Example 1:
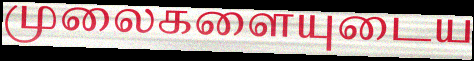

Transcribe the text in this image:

முலைகளையுடைய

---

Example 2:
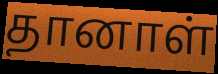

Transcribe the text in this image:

தானாள்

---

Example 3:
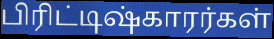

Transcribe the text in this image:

பிரிட்டிஷ்காரர்கள்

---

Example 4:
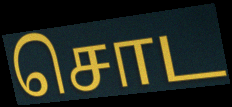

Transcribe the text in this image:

சொட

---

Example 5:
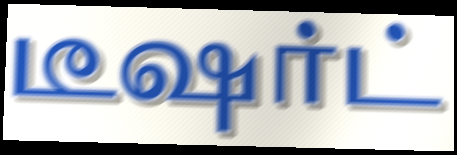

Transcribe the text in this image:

டீஷர்ட்